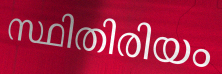
സ്ഥിതിരിയം